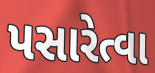
પસારેત્વા